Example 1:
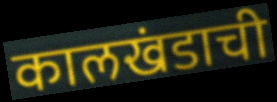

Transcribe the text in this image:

कालखंडाची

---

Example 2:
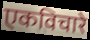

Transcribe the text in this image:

एकविचारे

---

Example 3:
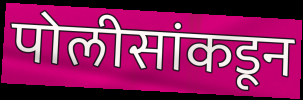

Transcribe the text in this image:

पोलीसांकडून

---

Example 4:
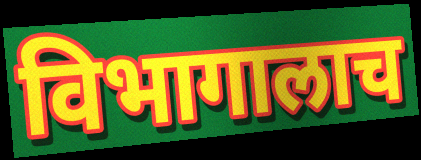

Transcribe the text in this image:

विभागालाच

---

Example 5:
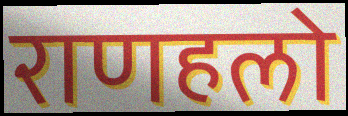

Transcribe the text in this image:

राणहलो